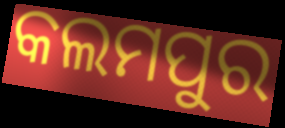
କଲମପୁର